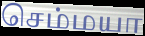
செம்மயா